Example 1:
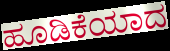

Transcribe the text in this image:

ಹೂಡಿಕೆಯಾದ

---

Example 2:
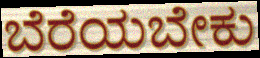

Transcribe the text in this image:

ಬೆರೆಯಬೇಕು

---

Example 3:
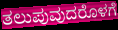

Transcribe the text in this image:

ತಲುಪುವುದರೊಳಗೆ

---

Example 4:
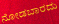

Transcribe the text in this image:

ನೋಡಬಾರದು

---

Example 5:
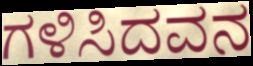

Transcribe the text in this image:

ಗಳಿಸಿದವನ